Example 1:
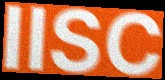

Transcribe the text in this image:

IISC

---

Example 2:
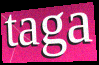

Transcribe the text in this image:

taga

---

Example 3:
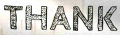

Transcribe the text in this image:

THANK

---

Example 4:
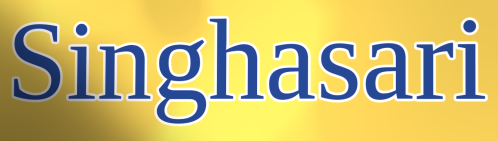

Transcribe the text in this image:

Singhasari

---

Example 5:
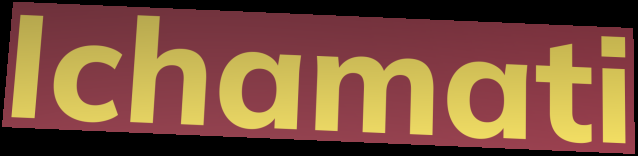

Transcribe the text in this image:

Ichamati